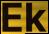
Ek